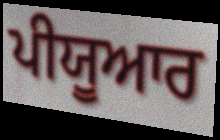
ਪੀਯੂਆਰ